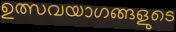
ഉത്സവയാഗങ്ങളുടെ